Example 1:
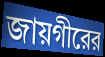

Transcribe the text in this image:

জায়গীরের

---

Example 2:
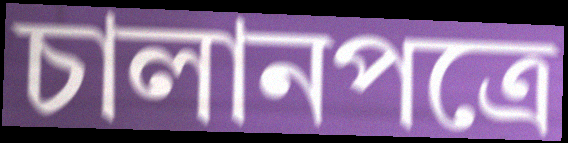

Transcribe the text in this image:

চালানপত্রে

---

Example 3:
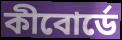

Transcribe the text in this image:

কীবোর্ডে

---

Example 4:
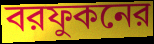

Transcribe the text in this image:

বরফুকনের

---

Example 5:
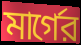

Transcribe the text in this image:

মার্গের